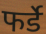
फर्डे